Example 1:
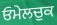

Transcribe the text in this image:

ਓਮੇਲਚੁਕ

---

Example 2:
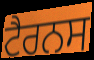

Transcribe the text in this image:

ਟੈਰਨਸ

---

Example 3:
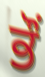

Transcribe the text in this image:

ਭੌਂ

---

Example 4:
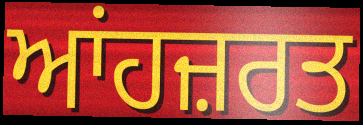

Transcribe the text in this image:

ਆਂਹਜ਼ਰਤ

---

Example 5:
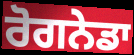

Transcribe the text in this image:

ਰੋਗਨੇਡਾ